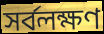
সর্বলক্ষণ